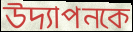
উদ্যাপনকে